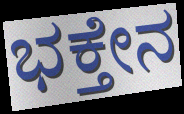
ಭಕ್ತೇನ